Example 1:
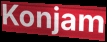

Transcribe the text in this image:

Konjam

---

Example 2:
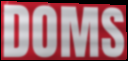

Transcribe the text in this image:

DOMS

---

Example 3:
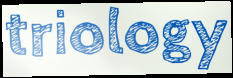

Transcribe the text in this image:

triology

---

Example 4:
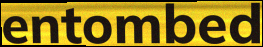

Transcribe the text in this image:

entombed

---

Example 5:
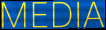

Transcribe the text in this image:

MEDIA